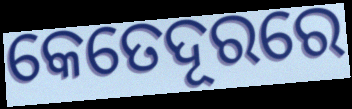
କେତେଦୂରରେ